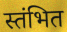
स्तंभित